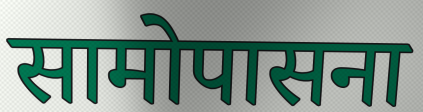
सामोपासना